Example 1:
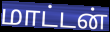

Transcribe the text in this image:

மாட்டன்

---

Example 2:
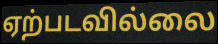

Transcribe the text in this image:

ஏற்படவில்லை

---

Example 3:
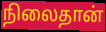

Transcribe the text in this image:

நிலைதான்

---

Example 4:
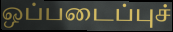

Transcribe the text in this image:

ஒப்படைப்புச்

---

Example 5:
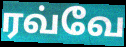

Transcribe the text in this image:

ரவ்வே